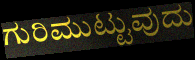
ಗುರಿಮುಟ್ಟುವುದು